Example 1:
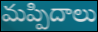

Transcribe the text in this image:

మప్పిదాలు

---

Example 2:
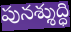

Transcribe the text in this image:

పునశ్శుద్ధి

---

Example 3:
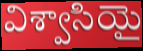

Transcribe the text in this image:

విశ్వాసియై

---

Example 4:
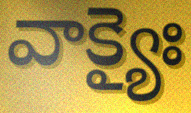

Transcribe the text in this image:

వాక్యైః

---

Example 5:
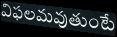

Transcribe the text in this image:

విఫలమవుతుంటే